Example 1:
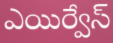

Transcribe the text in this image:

ఎయిర్వేస్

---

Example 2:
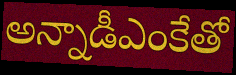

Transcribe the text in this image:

అన్నాడీఎంకేతో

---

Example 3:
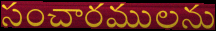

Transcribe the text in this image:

సంచారములను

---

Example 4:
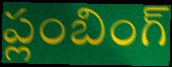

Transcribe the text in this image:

ప్లంబింగ్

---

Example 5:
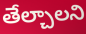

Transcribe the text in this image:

తేల్చాలని